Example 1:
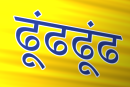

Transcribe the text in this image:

ढूंढढूंढ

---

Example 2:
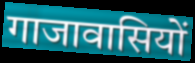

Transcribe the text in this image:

गाजावासियों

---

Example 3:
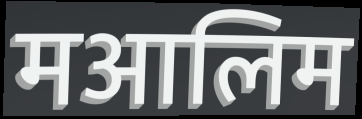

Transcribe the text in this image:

मआलिम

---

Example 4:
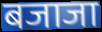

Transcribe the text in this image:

बजाजा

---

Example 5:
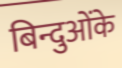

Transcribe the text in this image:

बिन्दुओंके